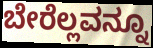
ಬೇರೆಲ್ಲವನ್ನೂ